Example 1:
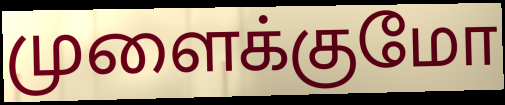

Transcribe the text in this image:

முளைக்குமோ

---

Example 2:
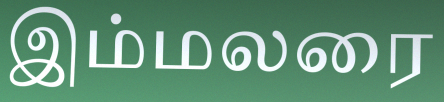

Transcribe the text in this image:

இம்மலரை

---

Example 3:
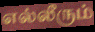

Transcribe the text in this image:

எல்லீரும்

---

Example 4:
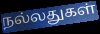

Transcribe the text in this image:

நல்லதுகள்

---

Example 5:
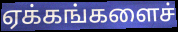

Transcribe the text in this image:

ஏக்கங்களைச்